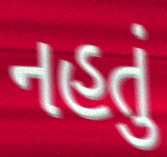
નહતું